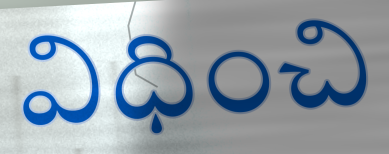
విధించి